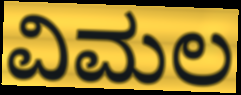
ವಿಮಲ